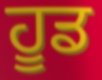
ਹੂਡ